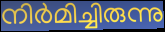
നിർമിച്ചിരുന്നു